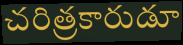
చరిత్రకారుడూ